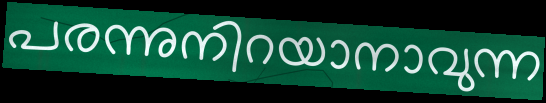
പരന്നുനിറയാനാവുന്ന